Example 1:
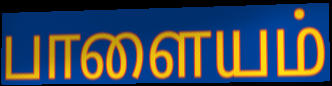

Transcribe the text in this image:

பாளையம்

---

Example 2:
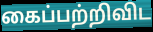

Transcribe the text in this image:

கைப்பற்றிவிட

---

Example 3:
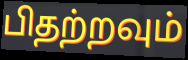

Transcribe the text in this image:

பிதற்றவும்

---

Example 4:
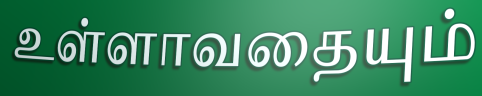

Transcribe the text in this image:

உள்ளாவதையும்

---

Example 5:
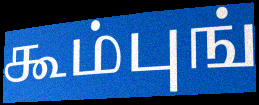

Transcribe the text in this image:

கூம்புங்